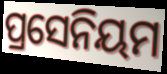
ପ୍ରସେନିୟମ